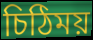
চিঠিময়